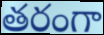
తరంగా